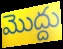
మొద్దు